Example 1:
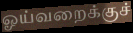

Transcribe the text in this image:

ஓய்வறைக்குச்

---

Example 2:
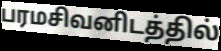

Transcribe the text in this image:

பரமசிவனிடத்தில்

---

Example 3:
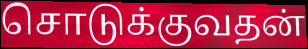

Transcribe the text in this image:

சொடுக்குவதன்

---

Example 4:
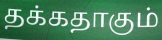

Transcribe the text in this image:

தக்கதாகும்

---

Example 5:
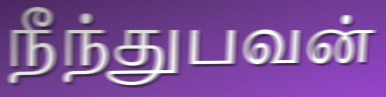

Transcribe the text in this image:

நீந்துபவன்